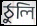
ঠুলি